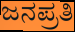
ಜನಪ್ರತಿ